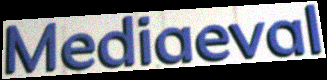
Mediaeval